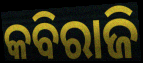
କବିରାଜି